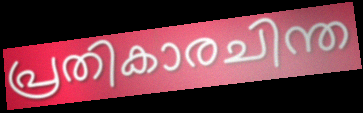
പ്രതികാരചിന്ത